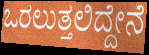
ಒರಲುತ್ತಲಿದ್ದೇನೆ